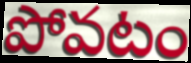
పోవటం